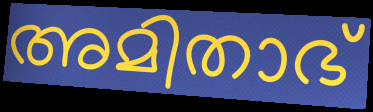
അമിതാഭ്